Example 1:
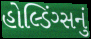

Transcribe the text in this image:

હોલ્ડિંગ્સનું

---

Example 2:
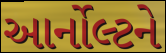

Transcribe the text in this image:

આર્નોલ્ટને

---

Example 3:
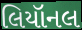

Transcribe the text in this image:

લિયૉનલ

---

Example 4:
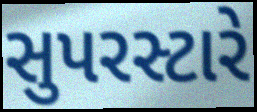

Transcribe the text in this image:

સુપરસ્ટારે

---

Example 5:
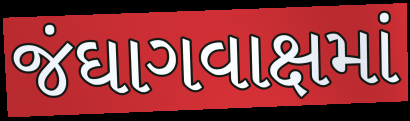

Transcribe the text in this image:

જંઘાગવાક્ષમાં